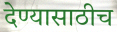
देण्यासाठीच